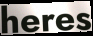
heres